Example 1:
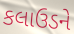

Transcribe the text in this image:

કલાઉડને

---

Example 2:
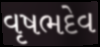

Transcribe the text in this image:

વૃષભદેવ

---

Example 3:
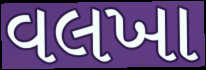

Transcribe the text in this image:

વલખા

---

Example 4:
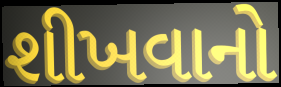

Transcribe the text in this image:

શીખવાનો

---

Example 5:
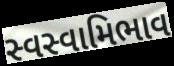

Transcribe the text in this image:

સ્વસ્વામિભાવ